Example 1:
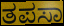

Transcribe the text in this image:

ತಪಸಾ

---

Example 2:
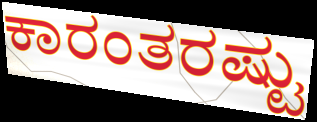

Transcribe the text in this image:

ಕಾರಂತರಷ್ಟು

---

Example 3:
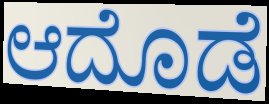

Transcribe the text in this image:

ಆದೊಡೆ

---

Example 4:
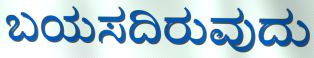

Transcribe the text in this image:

ಬಯಸದಿರುವುದು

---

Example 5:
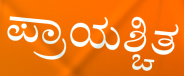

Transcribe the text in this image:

ಪ್ರಾಯಶ್ಚಿತ